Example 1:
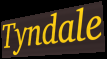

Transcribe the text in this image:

Tyndale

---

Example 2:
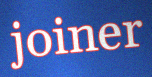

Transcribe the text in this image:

joiner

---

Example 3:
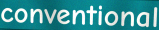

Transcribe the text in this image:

conventional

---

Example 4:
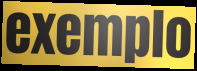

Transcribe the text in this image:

exemplo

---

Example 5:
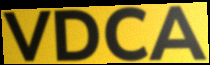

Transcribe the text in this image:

VDCA